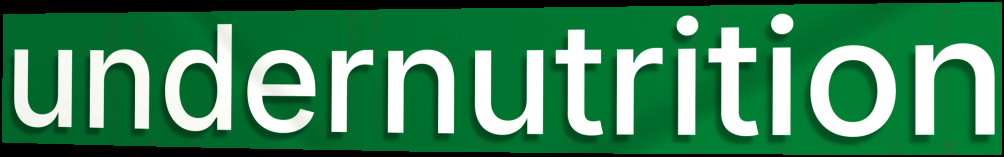
undernutrition